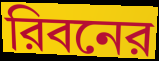
রিবনের